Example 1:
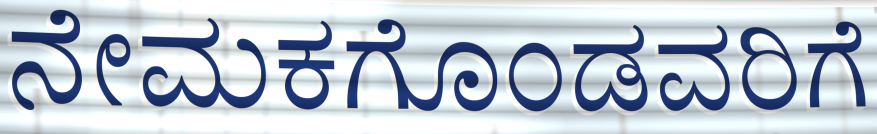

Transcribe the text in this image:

ನೇಮಕಗೊಂಡವರಿಗೆ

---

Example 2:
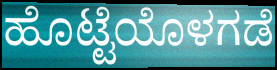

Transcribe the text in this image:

ಹೊಟ್ಟೆಯೊಳಗಡೆ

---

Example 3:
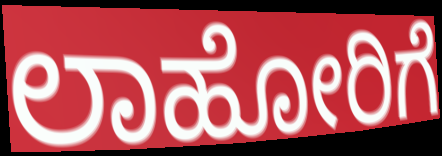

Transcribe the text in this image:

ಲಾಹೋರಿಗೆ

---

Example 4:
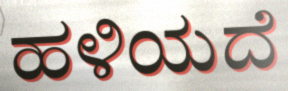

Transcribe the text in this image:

ಹಳಿಯದೆ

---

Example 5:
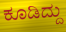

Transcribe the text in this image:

ಕೂಡಿದ್ದು